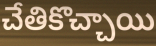
చేతికొచ్చాయి